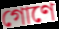
গোণে